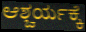
ಆಶ್ಚರ್ಯಕ್ಕೆ